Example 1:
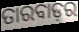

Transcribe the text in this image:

ତାରବାଡ଼ର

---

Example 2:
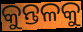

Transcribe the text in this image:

କୁନ୍ତଳକୁ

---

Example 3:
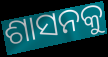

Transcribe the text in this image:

ଶାସନକୁ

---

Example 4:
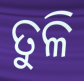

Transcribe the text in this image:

ତୁଳି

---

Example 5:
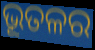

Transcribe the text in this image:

ଭୂତଳର